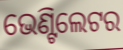
ଭେଣ୍ଟିଲେଟର